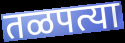
तळपत्या